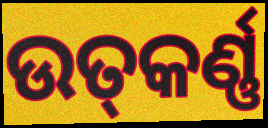
ଉତ୍‍କର୍ଣ୍ଣ